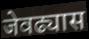
जेवढ्यास